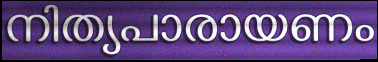
നിത്യപാരായണം